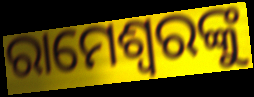
ରାମେଶ୍ୱରଙ୍କୁ